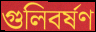
গুলিবর্ষণ